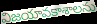
విజయావకాశాలను